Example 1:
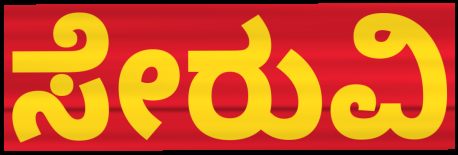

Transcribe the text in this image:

ಸೇರುವಿ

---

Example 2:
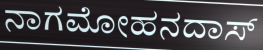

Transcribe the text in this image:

ನಾಗಮೋಹನದಾಸ್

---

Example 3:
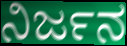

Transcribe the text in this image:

ನಿರ್ಜನ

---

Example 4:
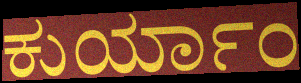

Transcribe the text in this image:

ಕುರ್ಯಾಂ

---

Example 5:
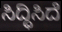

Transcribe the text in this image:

ಸಿದ್ಧಿಸಿದೆ